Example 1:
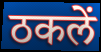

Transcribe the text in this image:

ठकलें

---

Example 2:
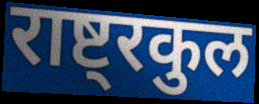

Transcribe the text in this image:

राष्ट्रकुल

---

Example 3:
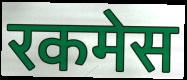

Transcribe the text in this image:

रकमेस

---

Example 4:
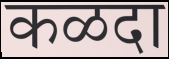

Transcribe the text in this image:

कळदा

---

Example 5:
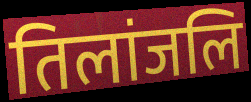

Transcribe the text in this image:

तिलांजलि